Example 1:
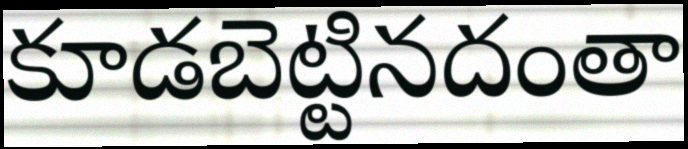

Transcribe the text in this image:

కూడబెట్టినదంతా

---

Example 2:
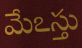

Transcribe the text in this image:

మేఽస్తు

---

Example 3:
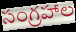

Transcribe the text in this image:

సంగ్రహాల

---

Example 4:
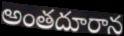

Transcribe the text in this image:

అంతదూరాన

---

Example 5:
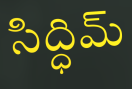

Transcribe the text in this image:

సిద్ధిమ్